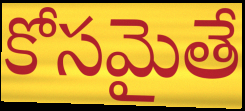
కోసమైతే